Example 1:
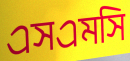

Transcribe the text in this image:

এসএমসি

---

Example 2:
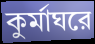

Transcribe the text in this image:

কুর্মাঘরে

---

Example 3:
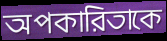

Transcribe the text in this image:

অপকারিতাকে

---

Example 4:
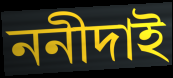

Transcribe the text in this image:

ননীদাই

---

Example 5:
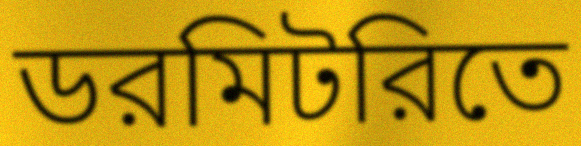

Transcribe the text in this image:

ডরমিটরিতে